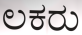
ಲಕರು